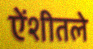
ऐंशीतले